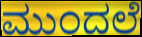
ಮುಂದಲೆ